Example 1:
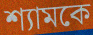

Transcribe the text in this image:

শ্যামকে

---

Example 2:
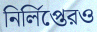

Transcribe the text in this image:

নির্লিপ্তেরও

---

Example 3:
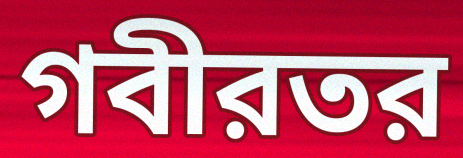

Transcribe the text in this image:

গবীরতর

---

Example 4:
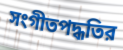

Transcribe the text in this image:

সংগীতপদ্ধতির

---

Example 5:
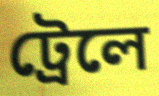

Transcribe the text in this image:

ট্রেলে